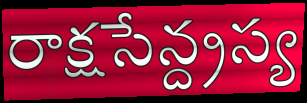
రాక్షసేన్ద్రస్య